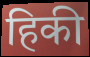
हिकी